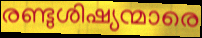
രണ്ടുശിഷ്യന്മാരെ